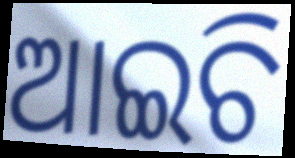
ଆଇଚି